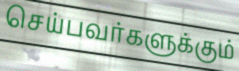
செய்பவர்களுக்கும்